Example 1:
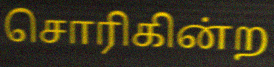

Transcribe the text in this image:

சொரிகின்ற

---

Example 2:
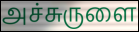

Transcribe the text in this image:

அச்சுருளை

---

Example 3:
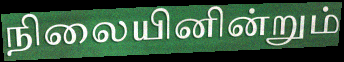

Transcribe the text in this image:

நிலையினின்றும்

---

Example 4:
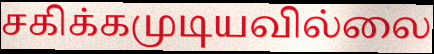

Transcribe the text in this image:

சகிக்கமுடியவில்லை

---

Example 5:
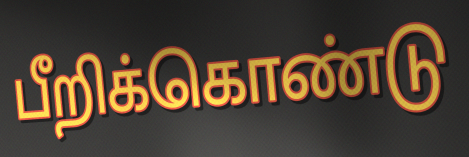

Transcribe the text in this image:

பீறிக்கொண்டு